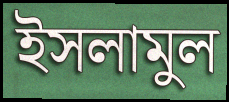
ইসলামুল